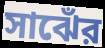
সাঝেঁর